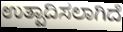
ಉತ್ಪಾದಿಸಲಾಗಿದೆ